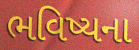
ભવિષ્યના